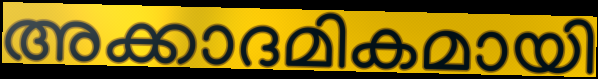
അക്കാദമികമായി